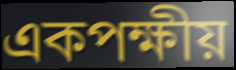
একপক্ষীয়